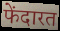
फेंदारत